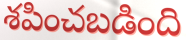
శపించబడింది